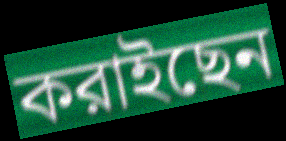
করাইছেন